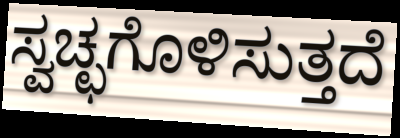
ಸ್ವಚ್ಛಗೊಳಿಸುತ್ತದೆ